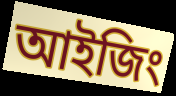
আইজিং